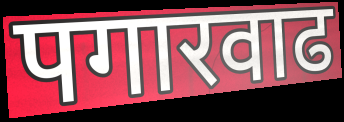
पगारवाढ